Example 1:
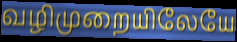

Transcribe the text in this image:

வழிமுறையிலேயே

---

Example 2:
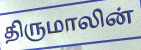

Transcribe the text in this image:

திருமாலின்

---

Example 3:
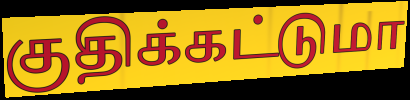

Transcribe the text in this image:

குதிக்கட்டுமா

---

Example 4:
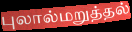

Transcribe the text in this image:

புலால்மறுத்தல்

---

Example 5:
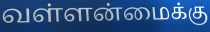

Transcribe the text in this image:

வள்ளன்மைக்கு